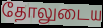
தோலுடைய